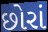
છોરાં